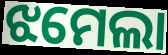
ଝମେଲା